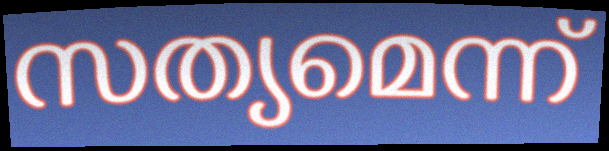
സത്യമെന്ന്